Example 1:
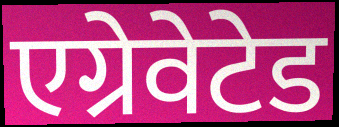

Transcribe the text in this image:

एग्रेवेटेड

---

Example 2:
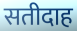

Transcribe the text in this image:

सतीदाह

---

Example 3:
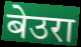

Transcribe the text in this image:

बेउरा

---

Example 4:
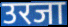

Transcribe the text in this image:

उरजा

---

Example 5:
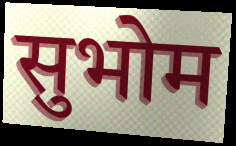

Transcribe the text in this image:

सुभोम